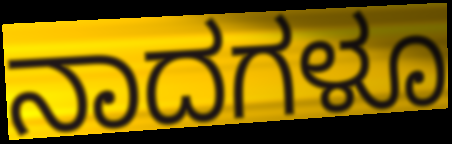
ನಾದಗಳೂ